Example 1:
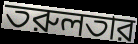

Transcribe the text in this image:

তরুলতার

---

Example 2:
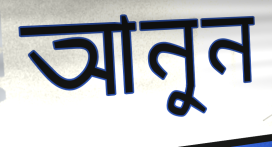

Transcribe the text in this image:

আনুন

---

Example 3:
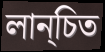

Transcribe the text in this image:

লান্চিত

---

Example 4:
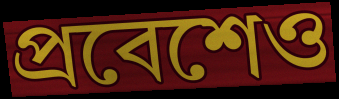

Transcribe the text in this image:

প্রবেশেও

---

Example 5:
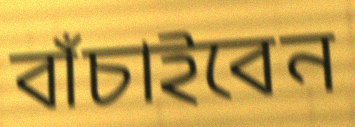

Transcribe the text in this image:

বাঁচাইবেন